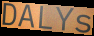
DALYs